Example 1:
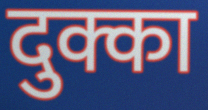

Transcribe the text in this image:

दुक्का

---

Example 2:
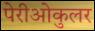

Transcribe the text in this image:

पेरीओकुलर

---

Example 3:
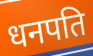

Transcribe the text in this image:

धनपति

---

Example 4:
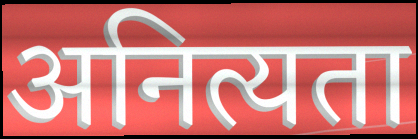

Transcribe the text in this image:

अनित्यता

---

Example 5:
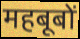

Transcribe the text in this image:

महबूबों